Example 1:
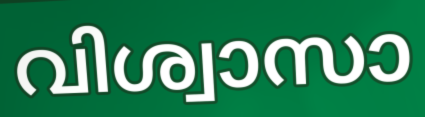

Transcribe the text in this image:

വിശ്വാസാ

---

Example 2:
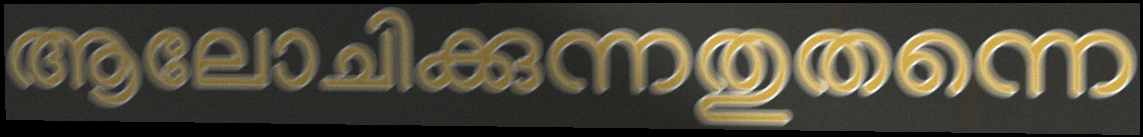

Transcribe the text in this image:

ആലോചിക്കുന്നതുതന്നെ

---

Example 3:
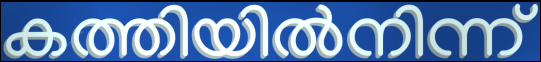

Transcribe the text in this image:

കത്തിയിൽനിന്ന്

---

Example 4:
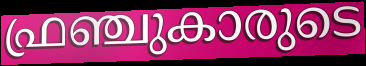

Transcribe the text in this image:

ഫ്രഞ്ചുകാരുടെ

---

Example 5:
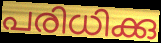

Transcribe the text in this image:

പരിധിക്കു